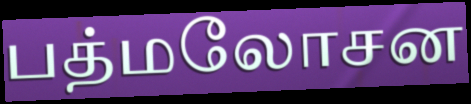
பத்மலோசன